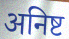
अनिष्ट